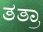
ತತ್ರಾ